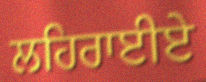
ਲਹਿਰਾਈਏ